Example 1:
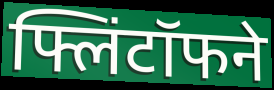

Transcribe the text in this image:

फ्लिंटॉफने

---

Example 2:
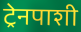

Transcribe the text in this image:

ट्रेनपाशी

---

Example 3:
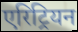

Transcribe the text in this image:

एरिट्रियन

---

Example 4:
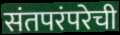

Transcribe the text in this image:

संतपरंपरेची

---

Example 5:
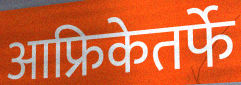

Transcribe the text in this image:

आफ्रिकेतर्फे